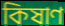
কিষাণ